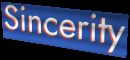
Sincerity